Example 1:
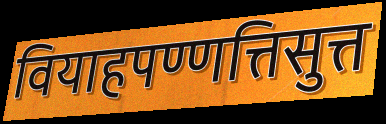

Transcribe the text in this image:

वियाहपण्णत्तिसुत्त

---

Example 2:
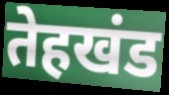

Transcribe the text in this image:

तेहखंड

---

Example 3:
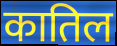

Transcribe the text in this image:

कातिल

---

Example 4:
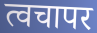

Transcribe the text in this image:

त्वचापर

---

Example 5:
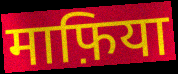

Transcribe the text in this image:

माफ़िया